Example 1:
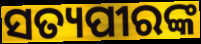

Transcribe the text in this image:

ସତ୍ୟପୀରଙ୍କ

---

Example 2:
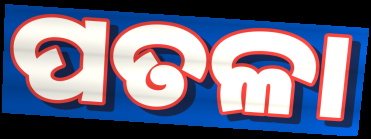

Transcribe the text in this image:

ପତଳା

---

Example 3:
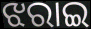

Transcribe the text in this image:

ଝରାଇ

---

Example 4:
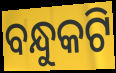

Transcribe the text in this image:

ବନ୍ଧୁକଟି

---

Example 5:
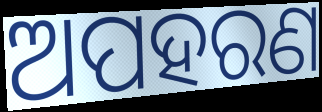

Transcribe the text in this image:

ଅପହରଣ